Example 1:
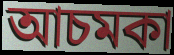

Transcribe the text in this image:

আচমকা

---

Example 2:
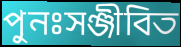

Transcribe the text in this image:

পুনঃসঞ্জীবিত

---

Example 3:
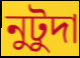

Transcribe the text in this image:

নুটুদা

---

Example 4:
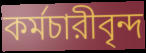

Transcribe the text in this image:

কর্মচারীবৃন্দ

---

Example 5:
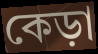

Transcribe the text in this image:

কেড়া